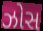
ઝોસ